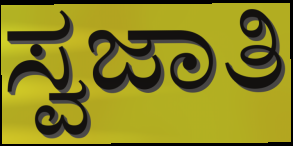
ಸ್ವಜಾತಿ